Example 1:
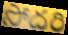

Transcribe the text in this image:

సోదరి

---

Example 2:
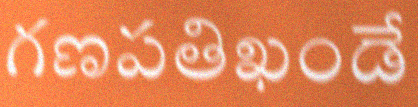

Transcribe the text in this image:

గణపతిఖండే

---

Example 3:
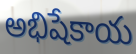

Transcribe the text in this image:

అభిషేకాయ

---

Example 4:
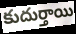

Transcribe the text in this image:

కుదుర్తాయి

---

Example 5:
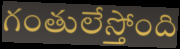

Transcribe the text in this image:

గంతులేస్తోంది